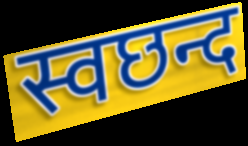
स्वछन्द